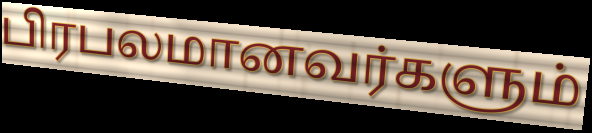
பிரபலமானவர்களும்